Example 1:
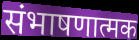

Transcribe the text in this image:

संभाषणात्मक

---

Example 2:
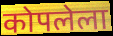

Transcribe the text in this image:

कोपलेला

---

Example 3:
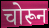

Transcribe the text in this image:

चोरून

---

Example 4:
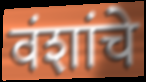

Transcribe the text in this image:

वंशांचे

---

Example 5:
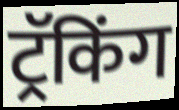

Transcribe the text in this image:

ट्रॅकिंग